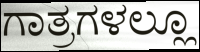
ಗಾತ್ರಗಳಲ್ಲೂ